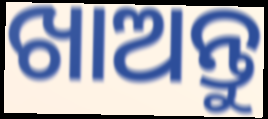
ଖାଅନ୍ତୁ